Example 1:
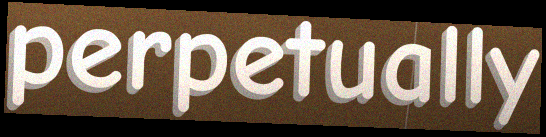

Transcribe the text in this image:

perpetually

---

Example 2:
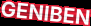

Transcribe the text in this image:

GENIBEN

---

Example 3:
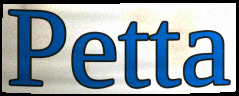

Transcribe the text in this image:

Petta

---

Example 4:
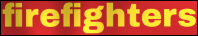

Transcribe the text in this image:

firefighters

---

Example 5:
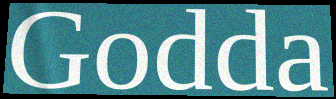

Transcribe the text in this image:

Godda